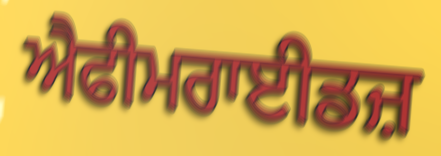
ਐਫੀਮਰਾਈਡਜ਼